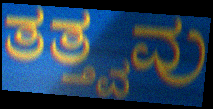
ತತ್ತ್ವವು